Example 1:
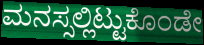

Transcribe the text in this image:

ಮನಸ್ಸಲ್ಲಿಟ್ಟುಕೊಂಡೇ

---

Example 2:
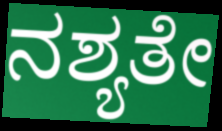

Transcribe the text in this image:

ನಶ್ಯತೇ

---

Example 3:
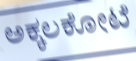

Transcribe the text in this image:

ಅಕ್ಕಲಕೋಟೆ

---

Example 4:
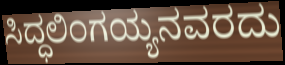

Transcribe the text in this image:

ಸಿದ್ಧಲಿಂಗಯ್ಯನವರದು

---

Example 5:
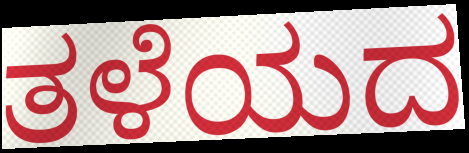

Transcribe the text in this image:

ತಳೆಯದ